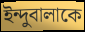
ইন্দুবালাকে